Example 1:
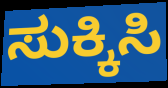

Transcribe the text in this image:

ಸುಕ್ಕಿಸಿ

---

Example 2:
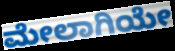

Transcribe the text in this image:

ಮೇಲಾಗಿಯೇ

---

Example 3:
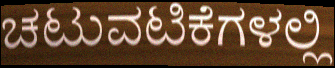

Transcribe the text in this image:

ಚಟುವಟಿಕೆಗಳಲ್ಲಿ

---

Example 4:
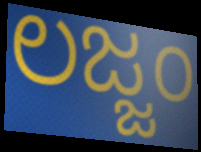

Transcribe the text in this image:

ಲಜ್ಜಂ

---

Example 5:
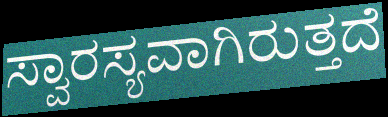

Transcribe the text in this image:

ಸ್ವಾರಸ್ಯವಾಗಿರುತ್ತದೆ